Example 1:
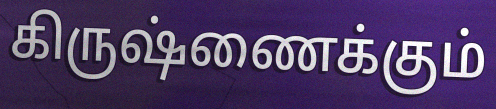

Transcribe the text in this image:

கிருஷ்ணைக்கும்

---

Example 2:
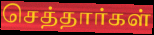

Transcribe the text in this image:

செத்தார்கள்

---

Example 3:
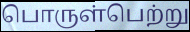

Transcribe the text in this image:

பொருள்பெற்று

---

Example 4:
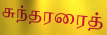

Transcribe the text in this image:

சுந்தரரைத்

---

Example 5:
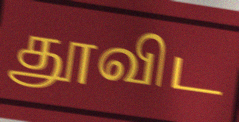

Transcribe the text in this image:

தூவிட